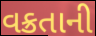
વક્રતાની